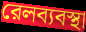
রেলব্যবস্থা